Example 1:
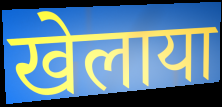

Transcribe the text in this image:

खेलाया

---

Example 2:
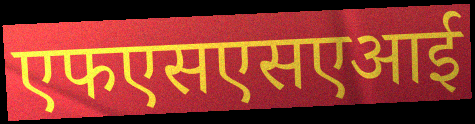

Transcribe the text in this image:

एफएसएसएआई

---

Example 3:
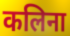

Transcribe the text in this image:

कलिना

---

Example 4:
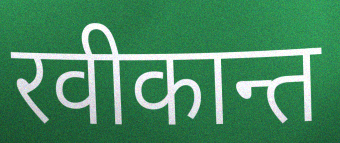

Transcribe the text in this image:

रवीकान्त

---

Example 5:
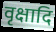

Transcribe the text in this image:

वृक्षादि